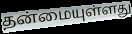
தன்மையுள்ளது